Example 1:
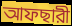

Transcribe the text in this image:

আফছারী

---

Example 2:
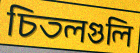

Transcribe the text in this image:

চিতলগুলি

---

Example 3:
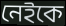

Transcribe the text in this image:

নেইকে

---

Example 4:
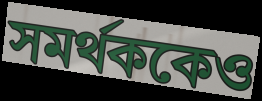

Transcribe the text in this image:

সমর্থককেও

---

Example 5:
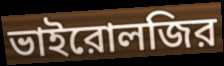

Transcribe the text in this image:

ভাইরোলজির